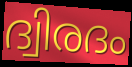
ദ്വിരദം